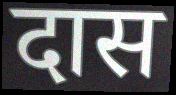
दास